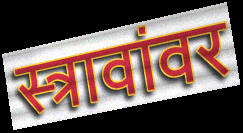
स्त्रावांवर